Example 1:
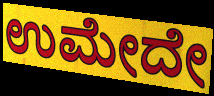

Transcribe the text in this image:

ಉಮೇದೇ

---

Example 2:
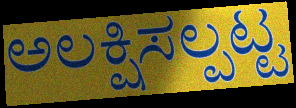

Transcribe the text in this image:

ಅಲಕ್ಷಿಸಲ್ಪಟ್ಟ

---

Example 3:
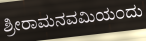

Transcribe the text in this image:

ಶ್ರೀರಾಮನವಮಿಯಂದು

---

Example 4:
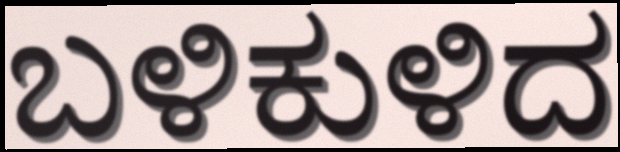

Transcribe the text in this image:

ಬಳಿಕುಳಿದ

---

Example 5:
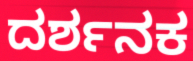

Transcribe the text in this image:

ದರ್ಶನಕ